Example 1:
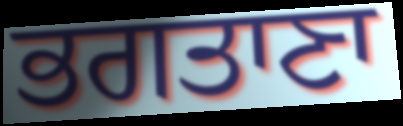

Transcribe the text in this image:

ਭਗਤਾਣਾ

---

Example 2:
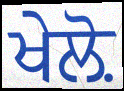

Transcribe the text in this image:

ਖੇਲ਼ੋ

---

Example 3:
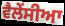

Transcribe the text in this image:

ਵੈਲੇਂਸੀਆ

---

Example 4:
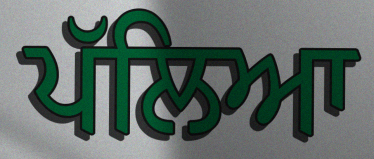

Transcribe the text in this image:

ਪੱਲਿਆ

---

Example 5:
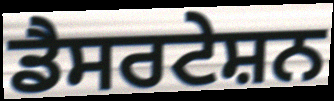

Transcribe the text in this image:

ਡੈਸਰਟੇਸ਼ਨ